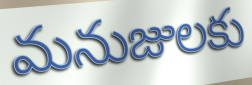
మనుజులకు